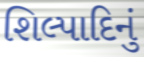
શિલ્પાદિનું